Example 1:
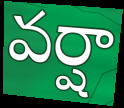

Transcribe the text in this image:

వర్షా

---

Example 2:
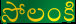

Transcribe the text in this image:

సోలంకి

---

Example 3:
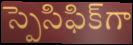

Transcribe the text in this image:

స్పెసిఫిక్‌గా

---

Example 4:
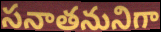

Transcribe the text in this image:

సనాతనునిగా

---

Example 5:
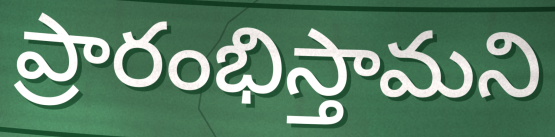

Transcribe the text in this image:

ప్రారంభిస్తామని